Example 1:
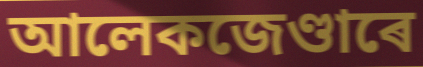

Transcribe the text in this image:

আলেকজেণ্ডাৰে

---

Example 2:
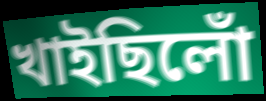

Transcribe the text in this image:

খাইছিলোঁ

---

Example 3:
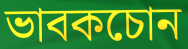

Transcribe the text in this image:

ভাবকচোন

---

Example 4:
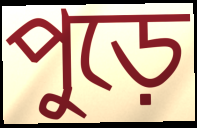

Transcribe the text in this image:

পুড়ে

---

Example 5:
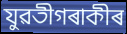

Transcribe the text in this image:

যুৱতীগৰাকীৰ